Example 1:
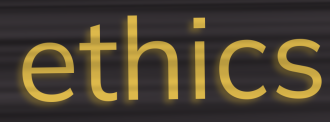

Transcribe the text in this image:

ethics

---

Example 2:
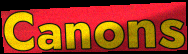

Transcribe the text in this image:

Canons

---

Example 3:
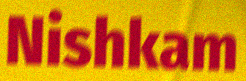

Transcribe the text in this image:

Nishkam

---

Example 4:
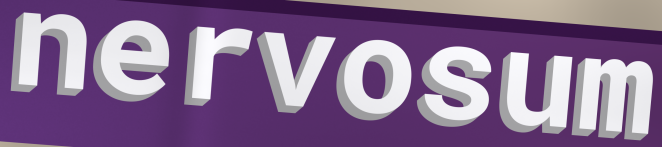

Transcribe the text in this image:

nervosum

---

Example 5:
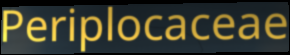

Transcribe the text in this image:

Periplocaceae